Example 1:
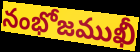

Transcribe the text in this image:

నంభోజముఖీ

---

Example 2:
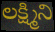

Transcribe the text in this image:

లక్ష్మిని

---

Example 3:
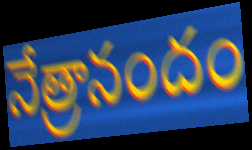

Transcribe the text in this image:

నేత్రానందం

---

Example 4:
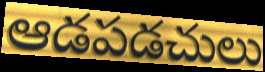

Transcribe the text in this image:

ఆడపడచులు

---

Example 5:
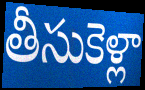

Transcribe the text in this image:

తీసుకెళ్లా